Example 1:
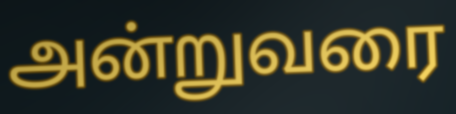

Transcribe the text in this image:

அன்றுவரை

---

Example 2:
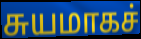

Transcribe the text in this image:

சுயமாகச்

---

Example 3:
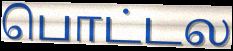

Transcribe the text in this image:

பொட்டல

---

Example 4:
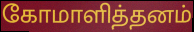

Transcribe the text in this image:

கோமாளித்தனம்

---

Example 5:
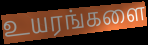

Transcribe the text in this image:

உயரங்களை